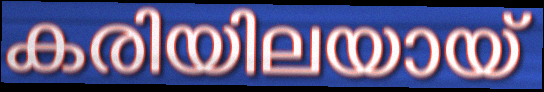
കരിയിലയായ്